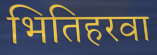
भितिहरवा